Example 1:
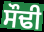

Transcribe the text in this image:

ਸੌਢੀ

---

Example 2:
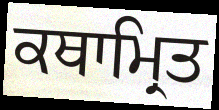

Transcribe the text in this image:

ਕਥਾਮ੍ਰਿਤ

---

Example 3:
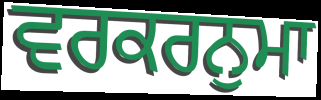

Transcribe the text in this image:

ਵਰਕਰਨੁਮਾ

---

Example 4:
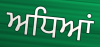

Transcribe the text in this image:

ਅਧਿਆਂ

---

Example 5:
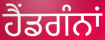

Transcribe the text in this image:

ਹੈਂਡਗੰਨਾਂ